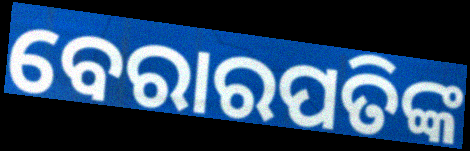
ବେରାରପତିଙ୍କ